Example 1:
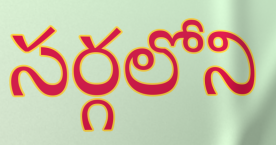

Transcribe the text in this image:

సర్గలోని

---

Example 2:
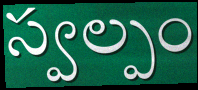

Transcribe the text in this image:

స్వల్పం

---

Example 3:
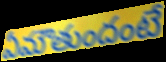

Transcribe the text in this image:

ఏమౌతుందంటే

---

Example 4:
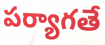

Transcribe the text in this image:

పర్యాగతే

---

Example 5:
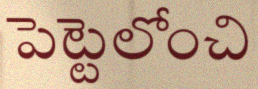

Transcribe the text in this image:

పెట్టెలోంచి